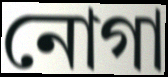
নোগা